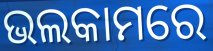
ଭଲକାମରେ